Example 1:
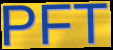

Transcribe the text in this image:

PFT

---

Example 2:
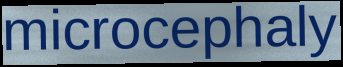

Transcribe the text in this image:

microcephaly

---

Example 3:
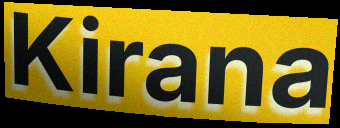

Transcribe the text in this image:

Kirana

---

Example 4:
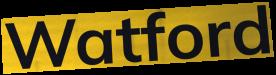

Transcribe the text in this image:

Watford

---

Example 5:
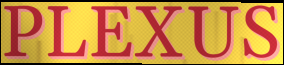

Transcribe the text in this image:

PLEXUS